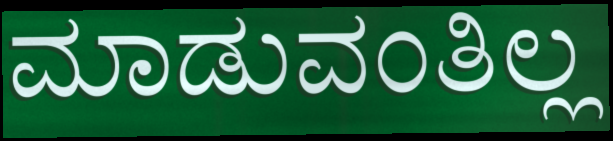
ಮಾಡುವಂತಿಲ್ಲ